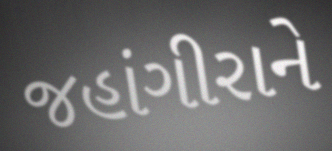
જહાંગીરાને